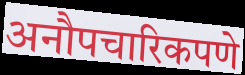
अनौपचारिकपणे